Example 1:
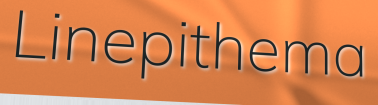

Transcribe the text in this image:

Linepithema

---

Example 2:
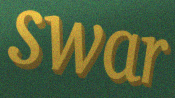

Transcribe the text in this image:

swar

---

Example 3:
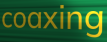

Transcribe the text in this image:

coaxing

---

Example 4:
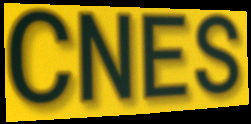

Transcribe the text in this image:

CNES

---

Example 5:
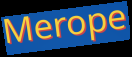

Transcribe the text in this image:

Merope